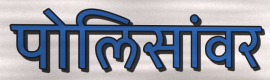
पोलिसांवर